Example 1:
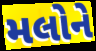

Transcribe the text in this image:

મલોને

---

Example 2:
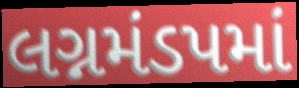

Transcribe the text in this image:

લગ્નમંડપમાં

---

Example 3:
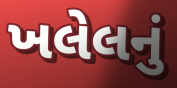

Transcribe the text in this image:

ખલેલનું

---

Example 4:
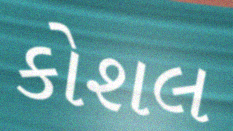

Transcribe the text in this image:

કોશલ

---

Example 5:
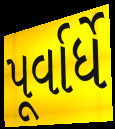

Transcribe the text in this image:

પૂર્વાર્ધે